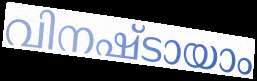
വിനഷ്ടായാം